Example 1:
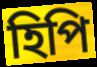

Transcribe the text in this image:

হিপি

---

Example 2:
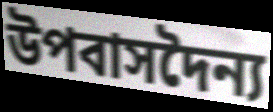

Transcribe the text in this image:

উপবাসদৈন্য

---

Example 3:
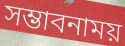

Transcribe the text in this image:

সম্ভাবনাময়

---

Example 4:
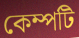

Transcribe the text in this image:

কেম্পটি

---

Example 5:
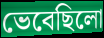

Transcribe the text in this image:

ভেবেছিলো